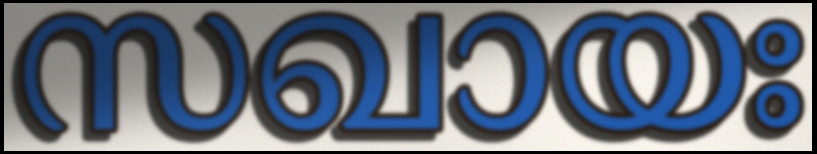
സഖായഃ